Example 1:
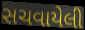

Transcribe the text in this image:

સચવાયેલી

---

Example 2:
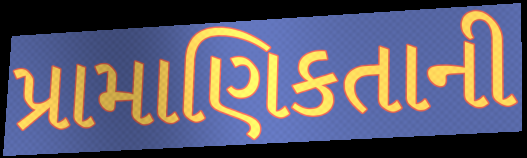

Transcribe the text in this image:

પ્રામાણિકતાની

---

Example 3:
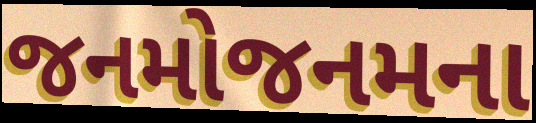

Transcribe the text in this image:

જનમોજનમના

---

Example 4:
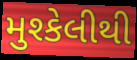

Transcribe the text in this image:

મુશ્કેલીથી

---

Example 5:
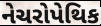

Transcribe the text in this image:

નેચરોપેથિક